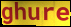
ghure